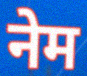
नेम